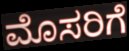
ಮೊಸರಿಗೆ